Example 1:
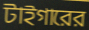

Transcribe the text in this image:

টাইগারের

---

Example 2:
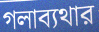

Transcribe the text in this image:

গলাব্যথার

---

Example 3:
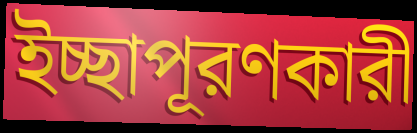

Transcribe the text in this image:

ইচ্ছাপূরণকারী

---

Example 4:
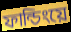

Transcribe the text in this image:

ফান্ডিংয়ে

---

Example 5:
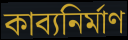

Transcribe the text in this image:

কাব্যনির্মাণ